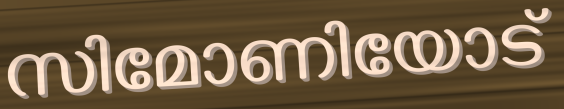
സിമോണിയോട്